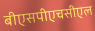
बीएसपीएचसीएल